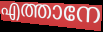
എത്താനേ